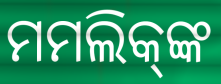
ମମଲିକ୍‌ଙ୍କ